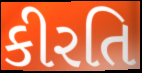
કીરતિ